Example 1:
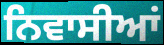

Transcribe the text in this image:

ਨਿਵਾਸੀਆਂ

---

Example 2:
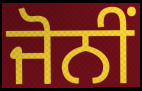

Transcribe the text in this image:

ਜੋਨੀਂ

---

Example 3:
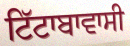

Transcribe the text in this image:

ਟਿੱਟਾਬਾਵਾਸੀ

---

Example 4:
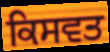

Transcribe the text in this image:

ਕਿਸਵਤ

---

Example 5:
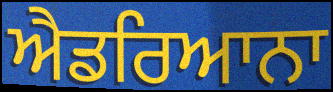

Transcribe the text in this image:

ਐਡਰਿਆਨਾ